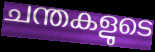
ചന്തകളുടെ